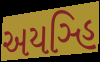
અયઞ્હિ